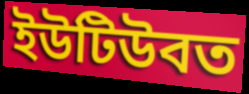
ইউটিউবত